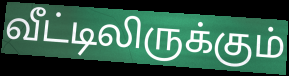
வீட்டிலிருக்கும்